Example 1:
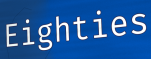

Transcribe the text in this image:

Eighties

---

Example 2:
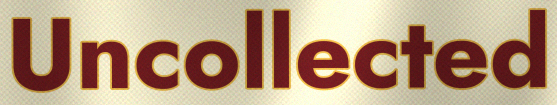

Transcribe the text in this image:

Uncollected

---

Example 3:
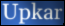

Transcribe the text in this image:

Upkar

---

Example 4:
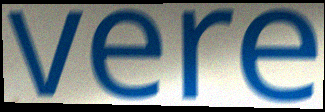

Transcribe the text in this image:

vere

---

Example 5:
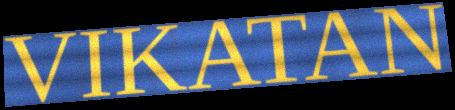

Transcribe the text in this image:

VIKATAN